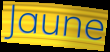
Jaune